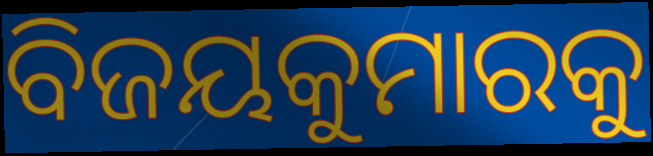
ବିଜୟକୁମାରକୁ